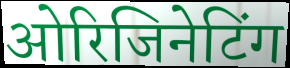
ओरिजिनेटिंग